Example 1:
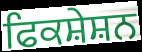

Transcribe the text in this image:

ਫਿਕਸ਼ੇਸ਼ਨ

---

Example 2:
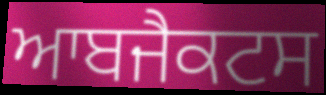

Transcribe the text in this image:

ਆਬਜੈਕਟਸ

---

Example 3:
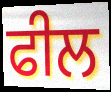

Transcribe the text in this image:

ਫੀਲ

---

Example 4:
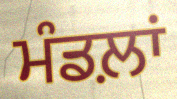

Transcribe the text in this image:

ਮੰਡਲ਼ਾਂ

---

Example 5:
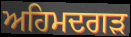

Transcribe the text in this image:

ਅਹਿਮਦਗੜ